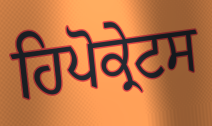
ਹਿਪੋਕ੍ਰੇਟਸ